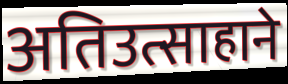
अतिउत्साहाने